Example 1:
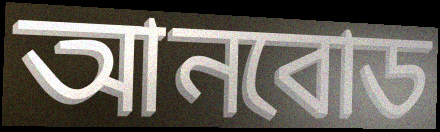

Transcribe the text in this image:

আনবোড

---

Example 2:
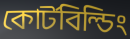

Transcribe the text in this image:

কোর্টবিল্ডিং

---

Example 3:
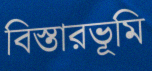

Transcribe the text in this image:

বিস্তারভূমি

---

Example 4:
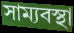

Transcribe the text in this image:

সাম্যবস্থা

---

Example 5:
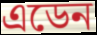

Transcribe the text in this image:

এডেন